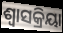
ଶ୍ବାସକ୍ରିୟା